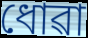
ধোৱা